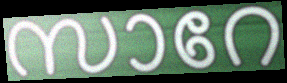
സാറേ